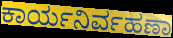
ಕಾರ್ಯನಿರ್ವಹಣಾ